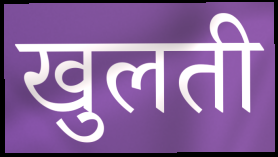
खुलती